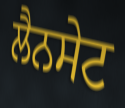
ਲੈਨਸੇਟ